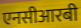
एनसीआरबी